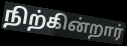
நிற்கின்றார்